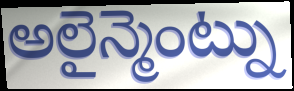
అలైన్మెంట్ను